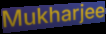
Mukharjee